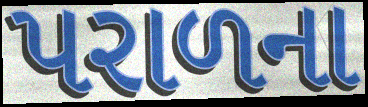
પરાળના